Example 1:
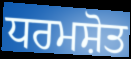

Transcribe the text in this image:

ਧਰਮਸ਼ੋਤ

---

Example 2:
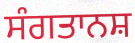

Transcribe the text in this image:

ਸੰਗਤਾਨਸ਼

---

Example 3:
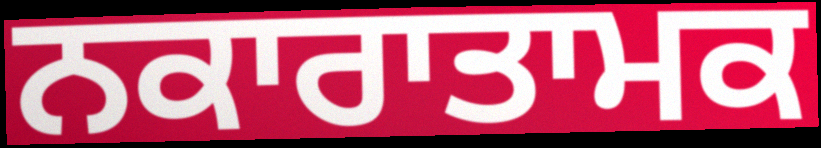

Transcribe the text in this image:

ਨਕਾਰਾਤਾਮਕ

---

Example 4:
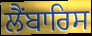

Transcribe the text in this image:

ਲੈਂਬਾਰਿਸ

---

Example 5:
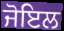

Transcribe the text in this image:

ਜੋਇਲ